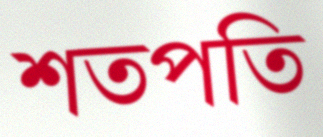
শতপতি